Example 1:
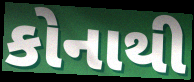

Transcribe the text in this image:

કોનાથી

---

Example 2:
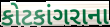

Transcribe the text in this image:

કોટકાંગરાના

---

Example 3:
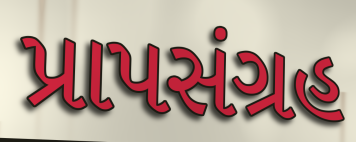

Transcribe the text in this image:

પ્રાપસંગ્રહ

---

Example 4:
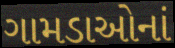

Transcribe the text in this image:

ગામડાઓનાં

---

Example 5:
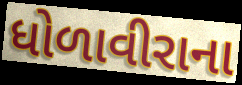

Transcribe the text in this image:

ધોળાવીરાના